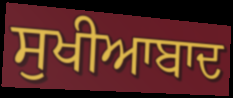
ਸੁਖੀਆਬਾਦ